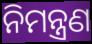
ନିମନ୍ତ୍ରଣ